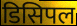
डिसिपल